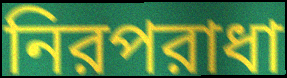
নিরপরাধা